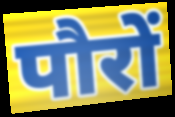
पौरों